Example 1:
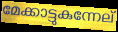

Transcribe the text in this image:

മേക്കാട്ടുകുന്നേല്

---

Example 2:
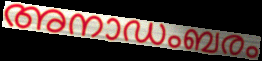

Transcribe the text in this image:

അനാഡംബരം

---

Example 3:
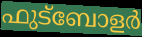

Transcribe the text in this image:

ഫുട്ബോളർ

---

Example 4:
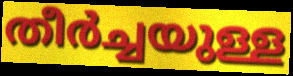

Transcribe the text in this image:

തീർച്ചയുള്ള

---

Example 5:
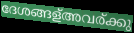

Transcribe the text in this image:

ദേശങ്ങള്അവര്ക്കു